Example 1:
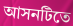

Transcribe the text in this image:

আসনটিতে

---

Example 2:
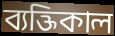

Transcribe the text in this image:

ব্যক্তিকাল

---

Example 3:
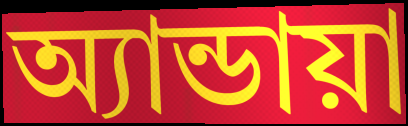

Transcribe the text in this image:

অ্যান্ডায়া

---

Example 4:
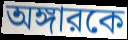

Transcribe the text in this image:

অঙ্গারকে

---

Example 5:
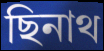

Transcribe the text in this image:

ছিনাথ